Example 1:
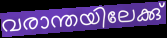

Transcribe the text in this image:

വരാന്തയിലേക്കു്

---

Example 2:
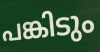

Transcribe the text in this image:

പങ്കിടും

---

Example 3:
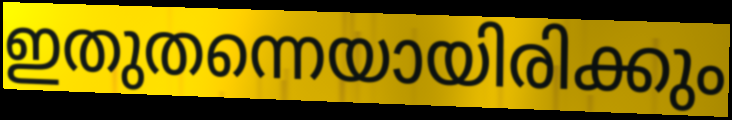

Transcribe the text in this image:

ഇതുതന്നെയായിരിക്കും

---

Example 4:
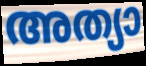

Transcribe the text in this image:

അത്യാ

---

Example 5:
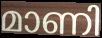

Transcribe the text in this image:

മാണി